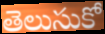
తెలుసుకో